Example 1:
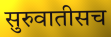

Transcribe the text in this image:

सुरुवातीसच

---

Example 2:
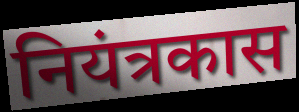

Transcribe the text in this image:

नियंत्रकास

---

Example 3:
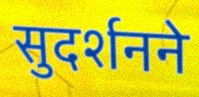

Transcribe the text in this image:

सुदर्शनने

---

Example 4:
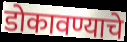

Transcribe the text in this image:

डोकावण्याचे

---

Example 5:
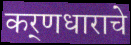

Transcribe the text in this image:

कर्णधाराचे